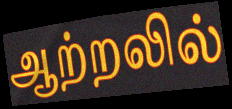
ஆற்றலில்